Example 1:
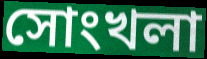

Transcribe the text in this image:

সোংখলা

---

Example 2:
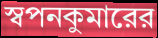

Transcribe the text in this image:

স্বপনকুমারের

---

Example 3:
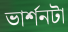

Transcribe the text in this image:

ভার্শনটা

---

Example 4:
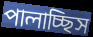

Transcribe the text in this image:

পালাচ্ছিস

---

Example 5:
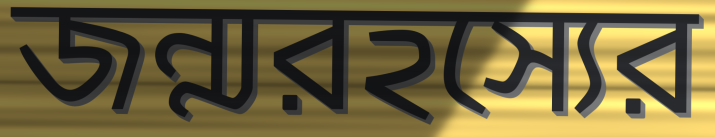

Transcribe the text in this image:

জন্মরহস্যের